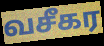
வசீகர